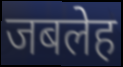
जबलेह